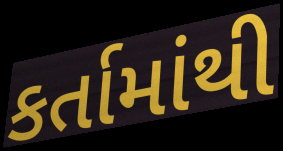
કર્તામાંથી